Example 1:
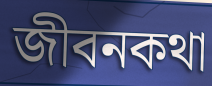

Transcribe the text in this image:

জীবনকথা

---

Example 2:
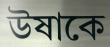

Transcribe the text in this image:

উষাকে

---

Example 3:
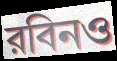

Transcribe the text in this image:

রবিনও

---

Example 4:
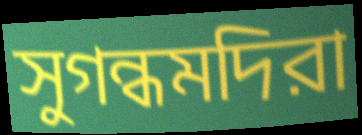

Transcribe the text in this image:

সুগন্ধমদিরা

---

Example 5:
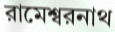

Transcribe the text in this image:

রামেশ্বরনাথ